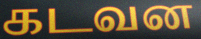
கடவன